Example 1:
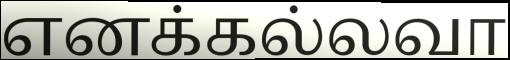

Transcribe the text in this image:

எனக்கல்லவா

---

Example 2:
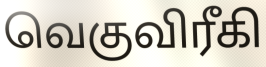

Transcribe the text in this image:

வெகுவிரீகி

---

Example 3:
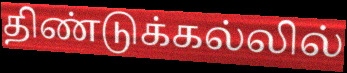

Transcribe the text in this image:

திண்டுக்கல்லில்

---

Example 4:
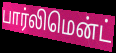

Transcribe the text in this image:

பார்லிமென்ட்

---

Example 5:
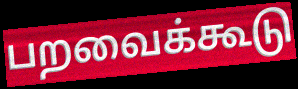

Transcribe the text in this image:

பறவைக்கூடு